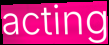
acting